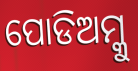
ପୋଡିଅମ୍କୁ